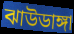
ঝাউডাঙ্গা